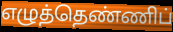
எழுத்தெண்ணிப்